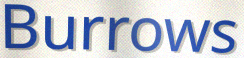
Burrows